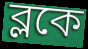
ব্লকে